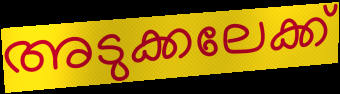
അടുക്കലേക്ക്